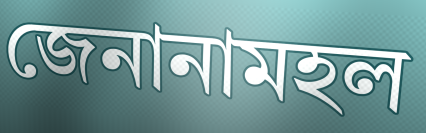
জেনানামহল